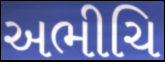
અભીચિ